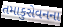
તમાકુસેવનના